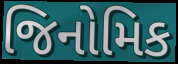
જિનોમિક